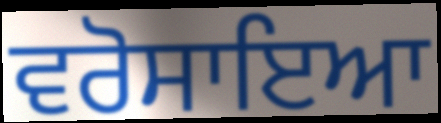
ਵਰੋਸਾਇਆ